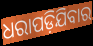
ଧରାପଡ଼ିଯିବାର